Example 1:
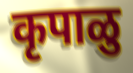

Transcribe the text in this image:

कृपाळु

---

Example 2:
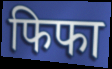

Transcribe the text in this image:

फिफा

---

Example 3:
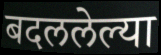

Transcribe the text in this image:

बदललेल्या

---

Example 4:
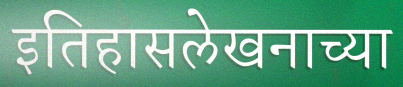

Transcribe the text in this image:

इतिहासलेखनाच्या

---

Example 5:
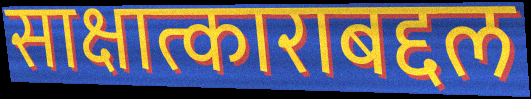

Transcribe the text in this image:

साक्षात्काराबद्दल